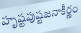
హృష్టపుష్టజనాకీర్ణం